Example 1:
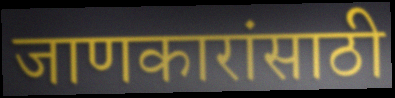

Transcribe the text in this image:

जाणकारांसाठी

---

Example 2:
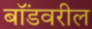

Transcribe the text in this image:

बॉंडवरील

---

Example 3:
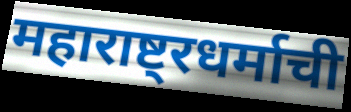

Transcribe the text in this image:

महाराष्ट्रधर्माची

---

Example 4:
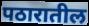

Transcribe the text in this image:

पठारातील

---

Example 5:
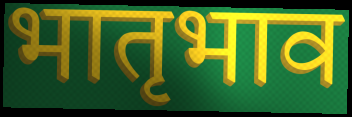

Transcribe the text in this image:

भातृभाव